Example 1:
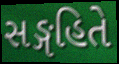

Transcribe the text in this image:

સઙ્ગહિતે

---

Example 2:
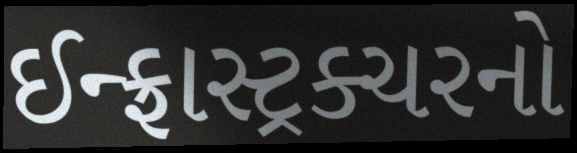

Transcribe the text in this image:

ઈન્ફ્રાસ્ટ્રક્ચરનો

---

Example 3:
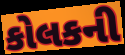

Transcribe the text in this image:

કોલકની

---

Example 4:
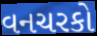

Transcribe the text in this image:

વનચરકો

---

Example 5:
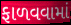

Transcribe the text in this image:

ફાળવવામાં